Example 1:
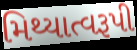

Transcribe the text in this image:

મિથ્યાત્વરૂપી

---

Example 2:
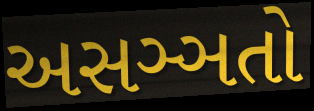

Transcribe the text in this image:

અસઞ્ઞતો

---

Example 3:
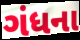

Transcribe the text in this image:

ગંધના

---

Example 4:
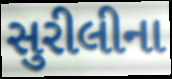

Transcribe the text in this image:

સુરીલીના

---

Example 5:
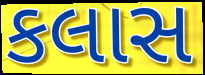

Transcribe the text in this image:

કલાસ